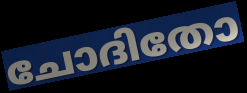
ചോദിതോ